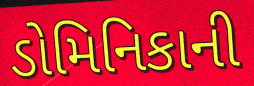
ડોમિનિકાની